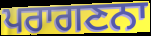
ਪਰਾਗਣਨਾ